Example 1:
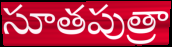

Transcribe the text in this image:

సూతపుత్రా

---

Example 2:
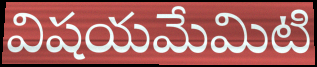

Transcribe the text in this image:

విషయమేమిటి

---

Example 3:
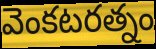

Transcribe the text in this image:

వెంకటరత్నం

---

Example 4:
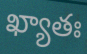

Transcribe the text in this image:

ఖ్యాతః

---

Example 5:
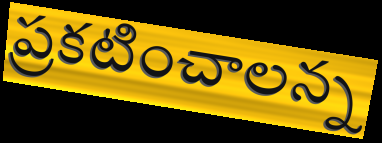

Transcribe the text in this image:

ప్రకటించాలన్న